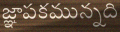
జ్ఞాపకమున్నది